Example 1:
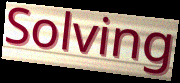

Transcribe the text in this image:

Solving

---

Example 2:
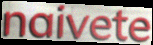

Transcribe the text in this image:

naivete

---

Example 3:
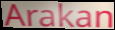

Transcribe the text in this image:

Arakan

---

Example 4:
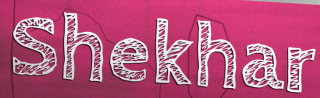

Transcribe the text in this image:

Shekhar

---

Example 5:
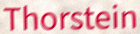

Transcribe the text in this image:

Thorstein